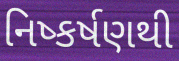
નિષ્કર્ષણથી